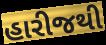
હારીજથી